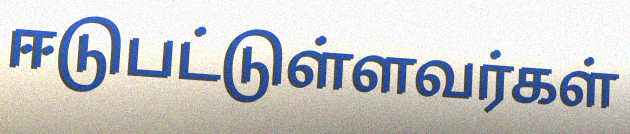
ஈடுபட்டுள்ளவர்கள்